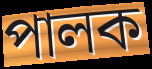
পালক